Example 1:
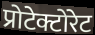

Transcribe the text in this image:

प्रोटेक्टोरेट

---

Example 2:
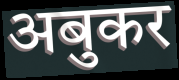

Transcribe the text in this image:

अबुकर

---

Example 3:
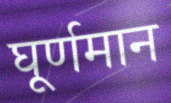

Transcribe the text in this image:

घूर्णमान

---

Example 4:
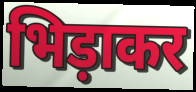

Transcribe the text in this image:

भिड़ाकर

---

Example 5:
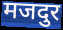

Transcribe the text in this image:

मजदुर